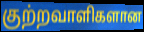
குற்றவாளிகளான